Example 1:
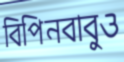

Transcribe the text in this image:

বিপিনবাবুও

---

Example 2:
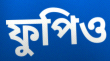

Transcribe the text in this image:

ফুপিও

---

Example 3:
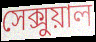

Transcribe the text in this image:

সেক্সুয়াল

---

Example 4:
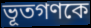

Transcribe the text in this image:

ভূতগণকে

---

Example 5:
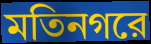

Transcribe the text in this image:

মতিনগরে